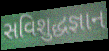
સવિશુદ્ધજ્ઞાન